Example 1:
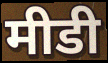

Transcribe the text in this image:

मीडी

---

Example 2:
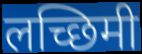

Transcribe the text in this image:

लच्छिमी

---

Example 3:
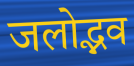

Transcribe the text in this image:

जलोद्भव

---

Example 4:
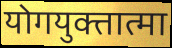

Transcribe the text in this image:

योगयुक्तात्मा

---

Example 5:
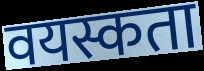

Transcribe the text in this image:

वयस्कता